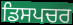
ਡਿਸਪਚਰ